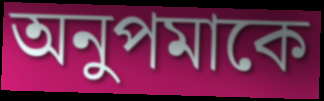
অনুপমাকে